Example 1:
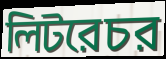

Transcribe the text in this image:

লিটরেচর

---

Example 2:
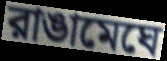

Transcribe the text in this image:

রাঙামেঘে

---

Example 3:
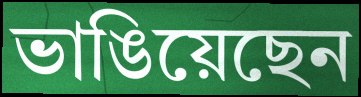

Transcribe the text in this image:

ভাঙিয়েছেন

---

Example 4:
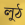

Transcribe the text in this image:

লুঠ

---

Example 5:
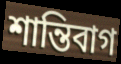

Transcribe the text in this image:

শান্তিবাগ